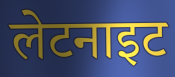
लेटनाइट